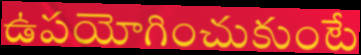
ఉపయోగించుకుంటే